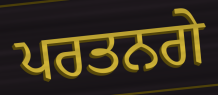
ਪਰਤਨਗੇ